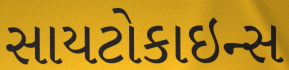
સાયટોકાઇન્સ